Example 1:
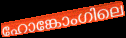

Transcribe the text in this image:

ഹോങ്കോംഗിലെ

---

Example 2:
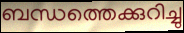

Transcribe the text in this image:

ബന്ധത്തെക്കുറിച്ചു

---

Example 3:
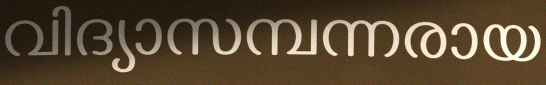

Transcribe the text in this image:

വിദ്യാസമ്പന്നരായ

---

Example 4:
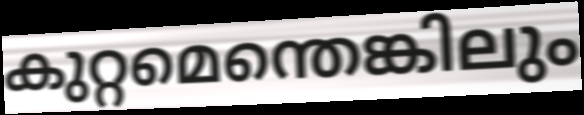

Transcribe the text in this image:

കുറ്റമെന്തെങ്കിലും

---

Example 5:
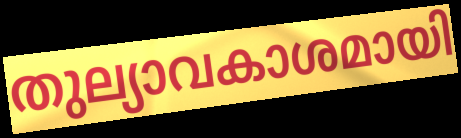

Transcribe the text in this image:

തുല്യാവകാശമായി